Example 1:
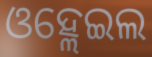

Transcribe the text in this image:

ଓହ୍ଲେଇଲ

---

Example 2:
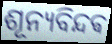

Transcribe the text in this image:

ଶୂନ୍ଯବିନ୍ଦଵ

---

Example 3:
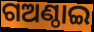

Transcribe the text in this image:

ଗଅଣ୍ଠାଇ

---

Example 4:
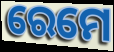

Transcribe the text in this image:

ରେମେ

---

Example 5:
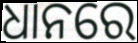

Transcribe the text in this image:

ଧାନରେ